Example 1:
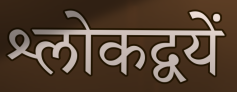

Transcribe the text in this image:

श्लोकद्वयें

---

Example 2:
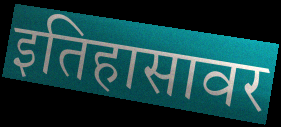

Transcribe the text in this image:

इतिहासावर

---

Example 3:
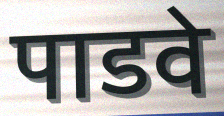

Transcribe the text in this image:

पाडवे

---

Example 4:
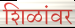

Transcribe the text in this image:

शिळांवर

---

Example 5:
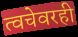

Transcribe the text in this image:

त्वचेवरही